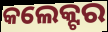
କଲେକ୍ଟର